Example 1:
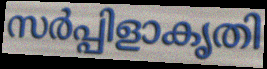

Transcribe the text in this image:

സർപ്പിളാകൃതി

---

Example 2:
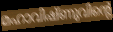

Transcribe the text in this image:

മഹാവിഷ്ണുവിന്റെ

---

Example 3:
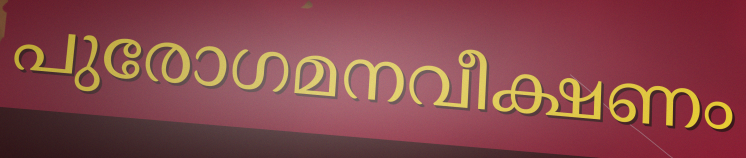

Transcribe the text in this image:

പുരോഗമനവീക്ഷണം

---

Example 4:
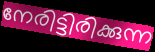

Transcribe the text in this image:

നേരിട്ടിരിക്കുന്ന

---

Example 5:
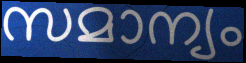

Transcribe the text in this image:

സമാന്യം